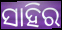
ସାହିର